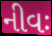
નીવઃ